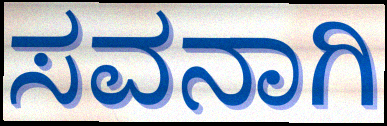
ಸವನಾಗಿ